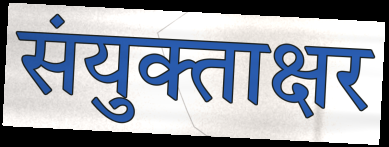
संयुक्ताक्षर